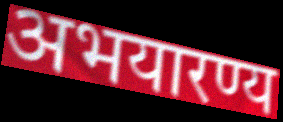
अभयारण्य